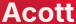
Acott